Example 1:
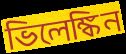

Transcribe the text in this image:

ভিলেঙ্কিন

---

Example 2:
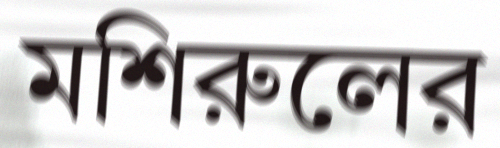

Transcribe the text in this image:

মশিরুলের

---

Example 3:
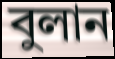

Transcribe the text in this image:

বুলান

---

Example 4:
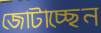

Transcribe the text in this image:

জোটাচ্ছেন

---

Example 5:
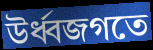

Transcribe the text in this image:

উর্ধ্বজগতে